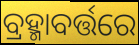
ବ୍ରହ୍ମାବର୍ତ୍ତରେ